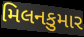
મિલનકુમાર